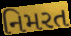
નિમરત